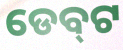
ଡେବ୍‌ଟ